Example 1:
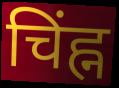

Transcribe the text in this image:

चिंह्न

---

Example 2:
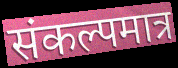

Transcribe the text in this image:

संकल्पमात्र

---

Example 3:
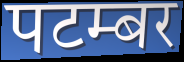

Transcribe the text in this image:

पटम्बर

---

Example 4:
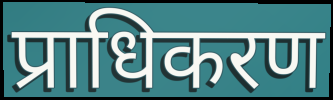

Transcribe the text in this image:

प्राधिकरण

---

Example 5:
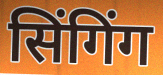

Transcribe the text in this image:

सिंगिंग